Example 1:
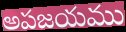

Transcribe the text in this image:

అపజయము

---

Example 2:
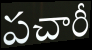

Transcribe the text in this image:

పచారీ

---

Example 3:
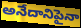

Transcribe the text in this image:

అనేదానిపైనా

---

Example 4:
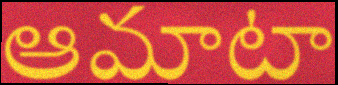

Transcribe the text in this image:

ఆమాటా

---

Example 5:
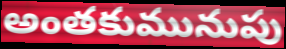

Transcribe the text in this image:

అంతకుమునుపు